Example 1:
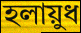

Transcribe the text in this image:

হলায়ুধ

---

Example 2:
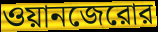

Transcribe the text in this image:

ওয়ানজেরোর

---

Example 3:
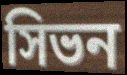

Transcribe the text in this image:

সিভন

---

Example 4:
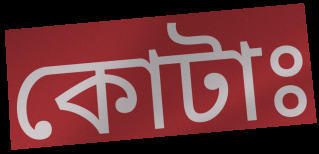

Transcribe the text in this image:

কোটাঃ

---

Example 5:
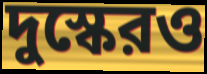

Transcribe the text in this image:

দুস্কেরও